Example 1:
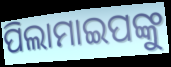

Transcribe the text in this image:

ପିଲାମାଇପଙ୍କୁ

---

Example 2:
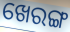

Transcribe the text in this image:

ଖେରଙ୍ଗ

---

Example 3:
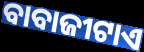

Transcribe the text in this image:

ବାବାଜୀଟାଏ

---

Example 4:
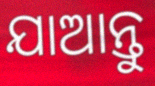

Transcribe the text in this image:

ଯାଆନ୍ତୁ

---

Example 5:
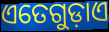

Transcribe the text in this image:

ଏତେଗୁଡ଼ାଏ